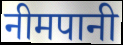
नीमपानी